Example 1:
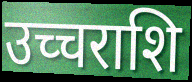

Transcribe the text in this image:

उच्चराशि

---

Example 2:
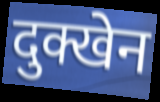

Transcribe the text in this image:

दुक्खेन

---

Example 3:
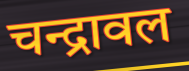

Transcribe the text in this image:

चन्द्रावल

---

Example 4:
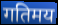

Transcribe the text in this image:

गतिमय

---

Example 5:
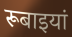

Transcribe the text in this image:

रूबाइयां